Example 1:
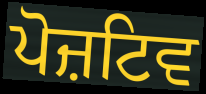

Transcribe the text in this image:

ਪੋਜ਼ਟਿਵ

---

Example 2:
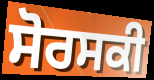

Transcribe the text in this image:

ਸੋਰਸਕੀ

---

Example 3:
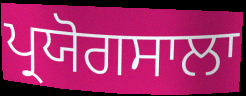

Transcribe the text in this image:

ਪ੍ਰਯੋਗਸਾਲਾ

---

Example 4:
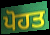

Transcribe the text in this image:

ਪੋਹਤ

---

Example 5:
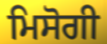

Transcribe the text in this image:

ਮਿਸੋਗੀ